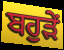
ਬਹੁੜੇਂ